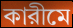
কারীমে